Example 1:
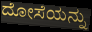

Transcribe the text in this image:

ದೋಸೆಯನ್ನು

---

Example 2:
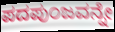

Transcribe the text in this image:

ಪದಪುಂಜವನ್ನೇ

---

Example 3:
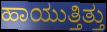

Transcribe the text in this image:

ಹಾಯುತ್ತಿತ್ತು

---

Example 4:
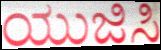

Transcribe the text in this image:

ಯುಜಿಸಿ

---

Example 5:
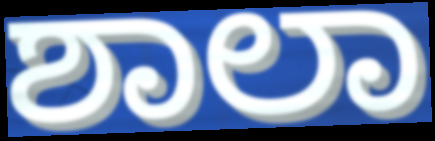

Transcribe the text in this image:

ಶಾಲಾ